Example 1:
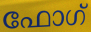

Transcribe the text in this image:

ഫോഗ്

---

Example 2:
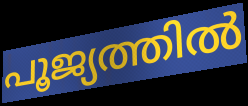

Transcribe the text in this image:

പൂജ്യത്തിൽ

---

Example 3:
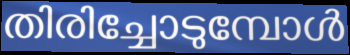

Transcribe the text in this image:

തിരിച്ചോടുമ്പോൾ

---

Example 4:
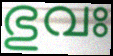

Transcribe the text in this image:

ഭുവഃ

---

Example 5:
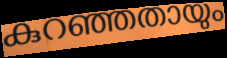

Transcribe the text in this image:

കുറഞ്ഞതായും